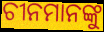
ଚୀନମାନଙ୍କୁ